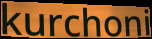
kurchoni